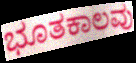
ಭೂತಕಾಲವು